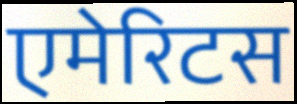
एमेरिटस